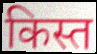
किस्त